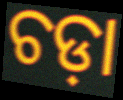
ଚଡ଼ା